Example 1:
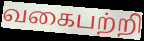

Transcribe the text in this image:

வகைபற்றி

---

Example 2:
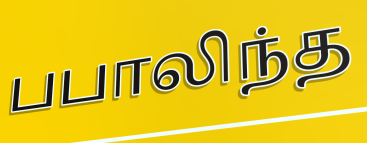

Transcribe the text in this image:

பபாலிந்த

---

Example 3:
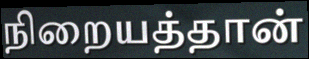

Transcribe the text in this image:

நிறையத்தான்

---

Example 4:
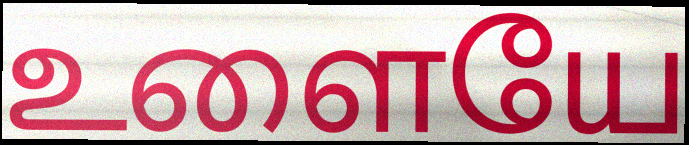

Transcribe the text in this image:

உளையே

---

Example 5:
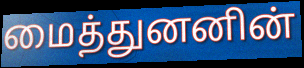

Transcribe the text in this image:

மைத்துனனின்